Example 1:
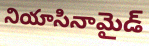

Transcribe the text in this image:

నియాసినామైడ్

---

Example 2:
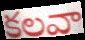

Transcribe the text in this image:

కలవా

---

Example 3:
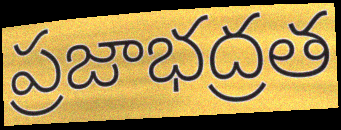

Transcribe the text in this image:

ప్రజాభద్రత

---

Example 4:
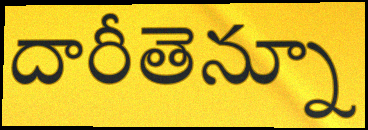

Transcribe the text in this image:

దారీతెన్నూ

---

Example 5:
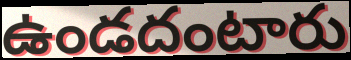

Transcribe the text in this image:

ఉండదంటారు